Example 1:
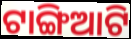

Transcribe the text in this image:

ଟାଙ୍ଗିଆଟି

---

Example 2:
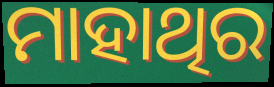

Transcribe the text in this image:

ମାହାଥିର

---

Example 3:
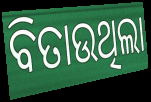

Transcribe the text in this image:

ବିତାଉଥିଲା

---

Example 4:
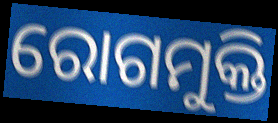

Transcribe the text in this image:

ରୋଗମୁକ୍ତି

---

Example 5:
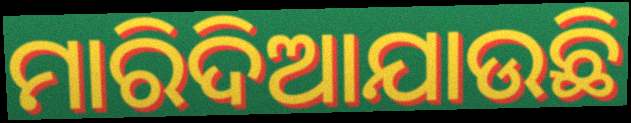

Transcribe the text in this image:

ମାରିଦିଆଯାଉଛି